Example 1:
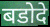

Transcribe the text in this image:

बडोदे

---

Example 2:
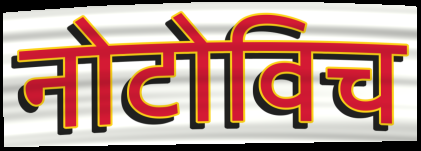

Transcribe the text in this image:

नोटोविच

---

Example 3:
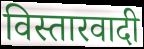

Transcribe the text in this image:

विस्तारवादी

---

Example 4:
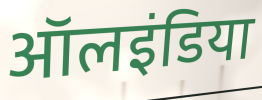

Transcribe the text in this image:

ऑलइंडिया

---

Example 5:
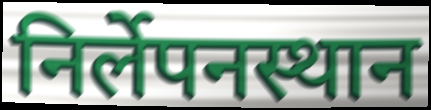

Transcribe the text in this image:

निर्लेपनस्थान